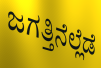
ಜಗತ್ತಿನೆಲ್ಲೆಡೆ